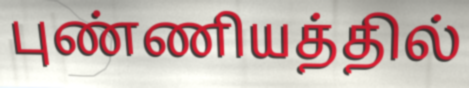
புண்ணியத்தில்